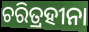
ଚରିତ୍ରହୀନା